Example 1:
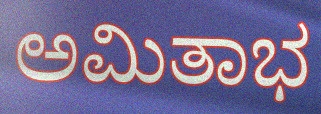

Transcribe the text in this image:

ಅಮಿತಾಭ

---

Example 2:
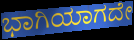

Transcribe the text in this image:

ಭಾಗಿಯಾಗದೇ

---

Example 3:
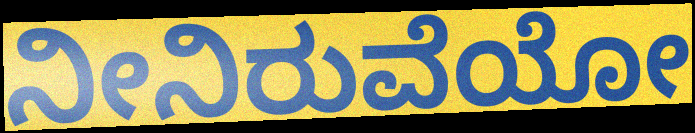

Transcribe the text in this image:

ನೀನಿರುವೆಯೋ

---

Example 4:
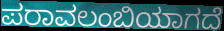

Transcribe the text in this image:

ಪರಾವಲಂಬಿಯಾಗದೆ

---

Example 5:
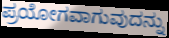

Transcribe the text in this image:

ಪ್ರಯೋಗವಾಗುವುದನ್ನು